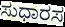
ಸುಧಾರಸ